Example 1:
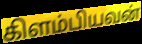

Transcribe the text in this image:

கிளம்பியவன்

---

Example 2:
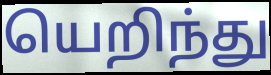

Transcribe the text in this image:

யெறிந்து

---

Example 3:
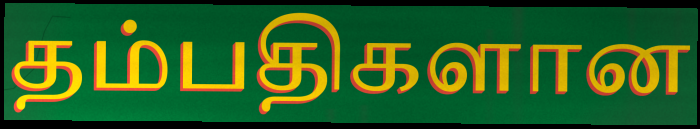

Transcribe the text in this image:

தம்பதிகளான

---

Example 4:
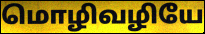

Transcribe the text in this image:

மொழிவழியே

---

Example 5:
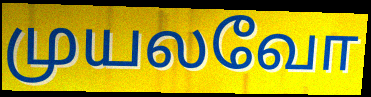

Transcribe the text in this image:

முயலவோ